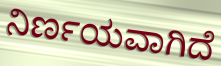
ನಿರ್ಣಯವಾಗಿದೆ